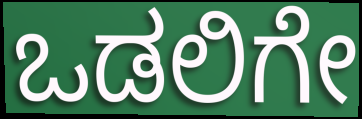
ಒಡಲಿಗೇ